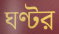
ঘণ্টর